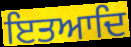
ਇਤਆਦਿ